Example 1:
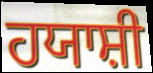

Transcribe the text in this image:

ਹਯਾਸ਼ੀ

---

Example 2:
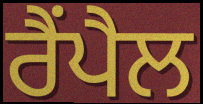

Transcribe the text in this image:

ਰੈਂਪੈਲ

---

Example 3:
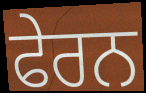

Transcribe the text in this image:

ਫੇਰਨ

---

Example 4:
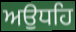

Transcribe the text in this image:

ਅਉਧਹਿ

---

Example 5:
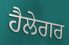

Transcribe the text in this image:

ਹੈਲੇਗਰ